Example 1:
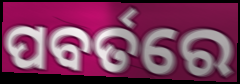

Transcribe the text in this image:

ପବର୍ତରେ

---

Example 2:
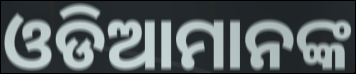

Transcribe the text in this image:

ଓଡିଆମାନଙ୍କ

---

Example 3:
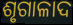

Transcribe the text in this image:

ଶୃଗାଳାଦ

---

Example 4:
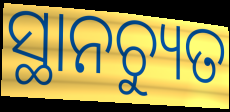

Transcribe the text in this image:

ସ୍ଥାନଚ୍ୟୁତ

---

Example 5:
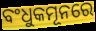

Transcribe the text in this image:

ବଂଧୁକମୂନରେ